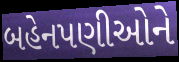
બહેનપણીઓને